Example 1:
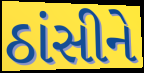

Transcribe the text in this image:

ઠાંસીને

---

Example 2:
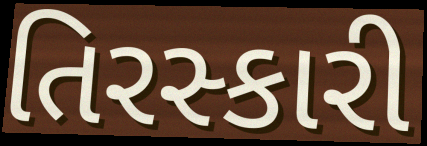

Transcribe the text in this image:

તિરસ્કારી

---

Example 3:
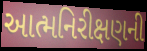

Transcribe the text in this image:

આત્મનિરીક્ષણની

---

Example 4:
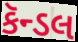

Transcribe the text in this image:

કૅન્ડલ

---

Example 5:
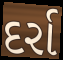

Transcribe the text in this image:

દર્રા